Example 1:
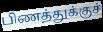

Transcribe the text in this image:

பிணத்துக்குச்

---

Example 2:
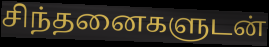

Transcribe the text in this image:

சிந்தனைகளுடன்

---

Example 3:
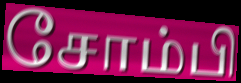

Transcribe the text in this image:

சோம்பி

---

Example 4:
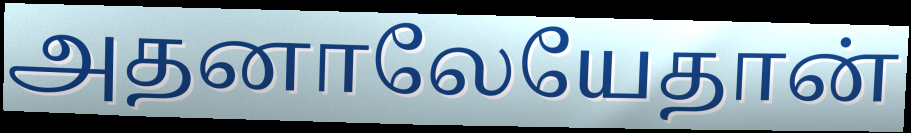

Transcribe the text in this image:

அதனாலேயேதான்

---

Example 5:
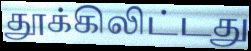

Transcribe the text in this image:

தூக்கிலிட்டது